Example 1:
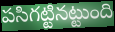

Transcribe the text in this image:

పసిగట్టినట్టుంది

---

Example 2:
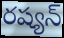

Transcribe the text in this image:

రష్యన్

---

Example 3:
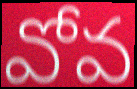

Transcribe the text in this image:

వోవ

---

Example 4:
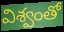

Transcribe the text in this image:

విశ్వంతో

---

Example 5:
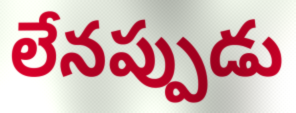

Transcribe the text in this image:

లేనప్పుడు